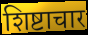
शिष्टाचार